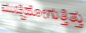
ಮುಚ್ಚಿಹೋಗುತ್ತಿತ್ತು